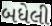
બધેલી